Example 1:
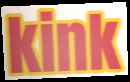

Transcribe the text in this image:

kink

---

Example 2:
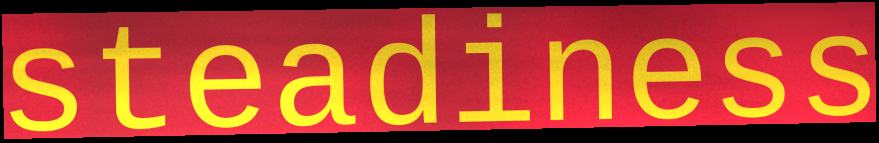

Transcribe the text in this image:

steadiness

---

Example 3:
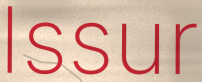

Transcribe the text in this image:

Issur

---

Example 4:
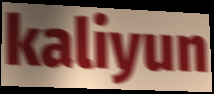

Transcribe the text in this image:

kaliyun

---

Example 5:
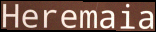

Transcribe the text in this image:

Heremaia